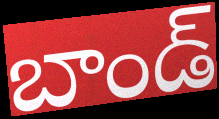
బాండ్